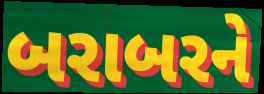
બરાબરને